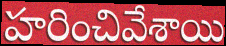
హరించివేశాయి